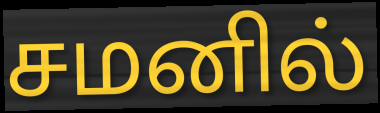
சமனில்